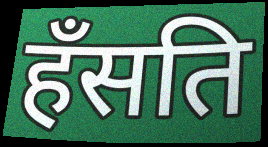
हँसति